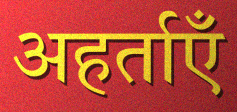
अहर्ताएँ